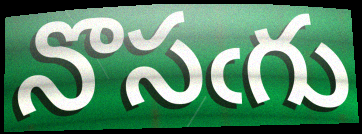
నొసఁగు